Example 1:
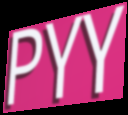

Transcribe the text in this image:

PYY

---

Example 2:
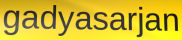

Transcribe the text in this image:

gadyasarjan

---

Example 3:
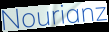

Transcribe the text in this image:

Nourianz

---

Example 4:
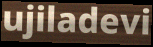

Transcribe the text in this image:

ujiladevi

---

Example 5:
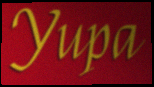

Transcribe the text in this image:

Yupa